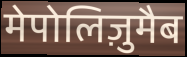
मेपोलिज़ुमैब